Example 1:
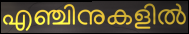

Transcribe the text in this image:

എഞ്ചിനുകളിൽ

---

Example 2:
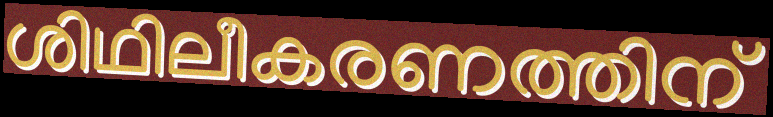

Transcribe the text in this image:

ശിഥിലീകരണത്തിന്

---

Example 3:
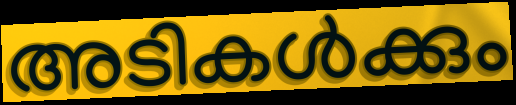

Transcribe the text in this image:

അടികൾക്കും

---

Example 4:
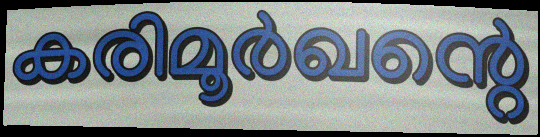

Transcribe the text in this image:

കരിമൂർഖന്റെ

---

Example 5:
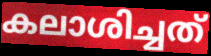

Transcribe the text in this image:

കലാശിച്ചത്